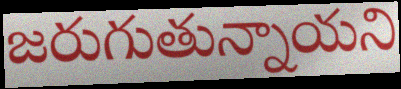
జరుగుతున్నాయని